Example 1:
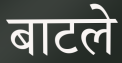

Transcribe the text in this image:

बाटले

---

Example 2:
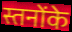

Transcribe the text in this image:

स्तनोंके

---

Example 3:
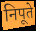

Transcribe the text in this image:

निपूते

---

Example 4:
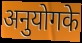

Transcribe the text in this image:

अनुयोगके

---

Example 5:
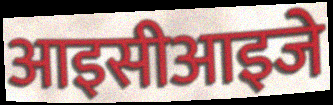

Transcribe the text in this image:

आइसीआइजे